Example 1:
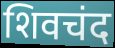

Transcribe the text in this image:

शिवचंद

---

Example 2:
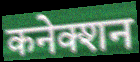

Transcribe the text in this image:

कनेक्‍शन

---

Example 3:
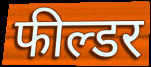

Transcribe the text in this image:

फील्डर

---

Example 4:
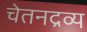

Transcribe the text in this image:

चेतनद्रव्य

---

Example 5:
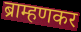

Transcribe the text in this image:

ब्राम्हणकर